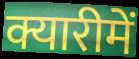
क्यारीमें